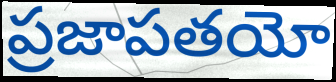
ప్రజాపతయో